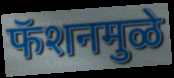
फॅशनमुळे